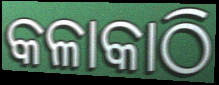
କଳାକାଠି